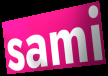
sami